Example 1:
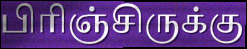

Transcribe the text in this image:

பிரிஞ்சிருக்கு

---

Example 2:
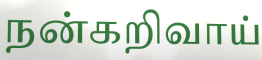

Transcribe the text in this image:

நன்கறிவாய்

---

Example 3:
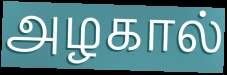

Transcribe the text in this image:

அழகால்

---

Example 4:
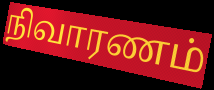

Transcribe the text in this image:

நிவாரணம்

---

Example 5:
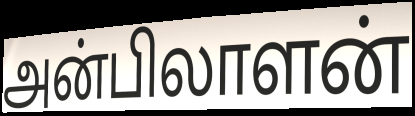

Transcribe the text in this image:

அன்பிலாளன்